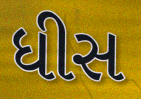
ધીસ